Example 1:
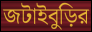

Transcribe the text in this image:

জটাইবুড়ির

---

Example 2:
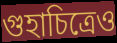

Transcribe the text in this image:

গুহাচিত্রেও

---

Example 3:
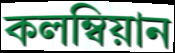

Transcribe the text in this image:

কলম্বিয়ান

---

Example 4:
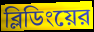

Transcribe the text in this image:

ব্লিডিংয়ের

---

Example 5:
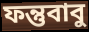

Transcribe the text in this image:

ফন্তুবাবু